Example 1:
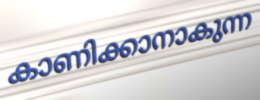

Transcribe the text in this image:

കാണിക്കാനാകുന്ന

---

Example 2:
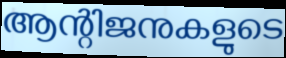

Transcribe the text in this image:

ആന്റിജനുകളുടെ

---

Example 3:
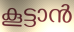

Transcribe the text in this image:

കൂട്ടാൻ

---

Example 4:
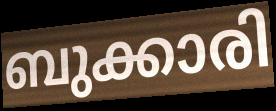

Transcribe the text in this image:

ബുക്കാരി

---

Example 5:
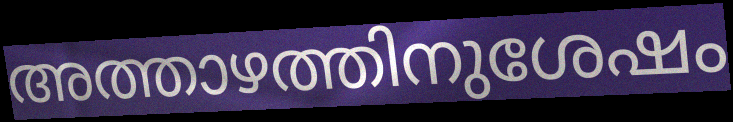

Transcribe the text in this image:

അത്താഴത്തിനുശേഷം